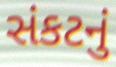
સંકટનું